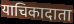
याचिकादाता